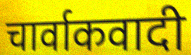
चार्वाकवादी